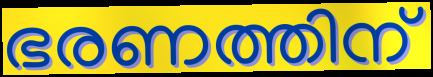
ഭരണത്തിന്